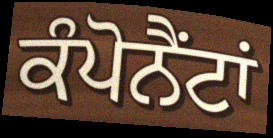
ਕੰਪੋਨੈਂਟਾਂ